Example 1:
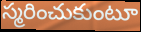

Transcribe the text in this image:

స్మరించుకుంటూ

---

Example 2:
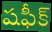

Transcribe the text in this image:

షఫీక్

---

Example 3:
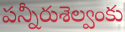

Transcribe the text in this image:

పన్నీరుశెల్వంకు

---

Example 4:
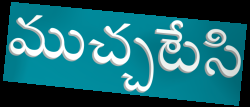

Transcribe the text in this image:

ముచ్చటేసి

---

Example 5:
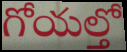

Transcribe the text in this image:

గోయల్తో